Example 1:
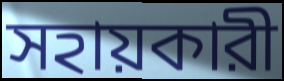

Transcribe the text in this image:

সহায়কারী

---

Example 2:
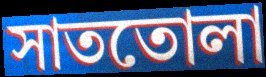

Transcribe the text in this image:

সাততোলা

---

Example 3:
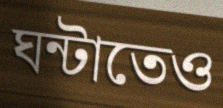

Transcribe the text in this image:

ঘন্টাতেও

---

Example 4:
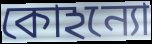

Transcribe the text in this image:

কোঽন্যো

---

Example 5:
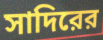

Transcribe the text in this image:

সাদিরের